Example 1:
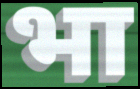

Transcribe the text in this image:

भा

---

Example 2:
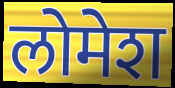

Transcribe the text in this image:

लोमेश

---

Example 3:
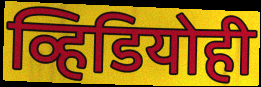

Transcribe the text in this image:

व्हिडियोही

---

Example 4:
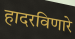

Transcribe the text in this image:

हादरविणारे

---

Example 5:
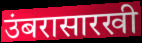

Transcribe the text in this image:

उंबरासारखी